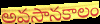
అవసానకాలం